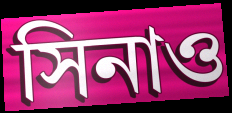
সিনাও